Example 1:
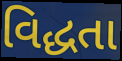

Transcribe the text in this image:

વિદ્ધતા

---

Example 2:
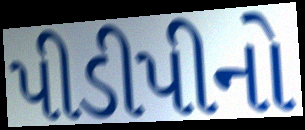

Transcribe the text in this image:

પીડીપીનો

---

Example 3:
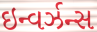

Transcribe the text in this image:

ઇન્વર્ઝન્સ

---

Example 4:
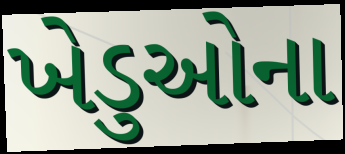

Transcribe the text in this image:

ખેડુઓના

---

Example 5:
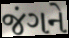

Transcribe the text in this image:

જંગને